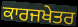
ਕਾਰਜਖੇਤਰ